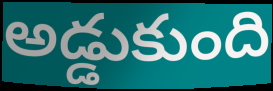
అడ్డుకుంది